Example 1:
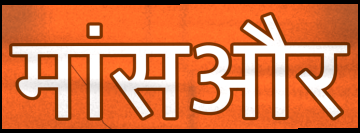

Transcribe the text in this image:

मांसऔर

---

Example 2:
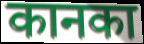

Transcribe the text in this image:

कानका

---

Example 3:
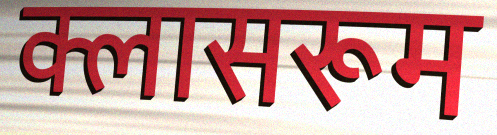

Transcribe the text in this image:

क्लासरूम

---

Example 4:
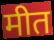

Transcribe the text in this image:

मीत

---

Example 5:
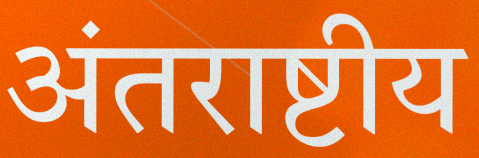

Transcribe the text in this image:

अंतराष्टीय